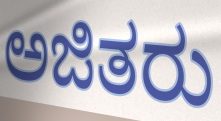
ಅಜಿತರು